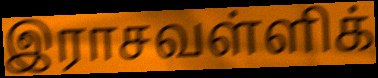
இராசவள்ளிக்